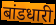
बांडधारी